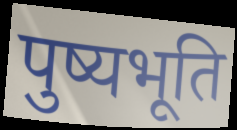
पुष्यभूति